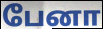
பேனா